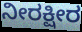
ನೀರಕ್ಷೀರ